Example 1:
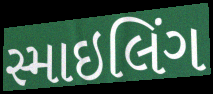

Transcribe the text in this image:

સ્માઇલિંગ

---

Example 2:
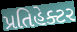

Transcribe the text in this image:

પ્રતિહેક્ટર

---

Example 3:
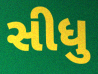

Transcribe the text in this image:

સીધુ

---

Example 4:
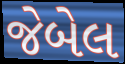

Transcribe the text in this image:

જેબેલ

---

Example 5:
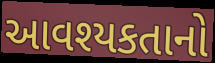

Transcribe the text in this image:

આવશ્યકતાનો